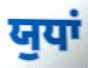
ਯੁਧਾਂ